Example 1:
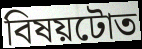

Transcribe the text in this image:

বিষয়টোত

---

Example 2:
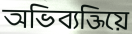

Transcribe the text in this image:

অভিব্যক্তিয়ে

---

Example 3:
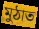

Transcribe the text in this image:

মুঠাত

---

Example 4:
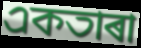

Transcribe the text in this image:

একতাৰা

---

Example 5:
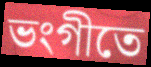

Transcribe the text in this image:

ভংগীতে